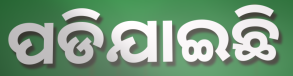
ପଡିଯାଇଛି